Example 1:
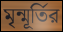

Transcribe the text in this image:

মৃন্মূর্তির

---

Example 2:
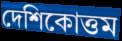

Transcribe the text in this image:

দেশিকোত্তম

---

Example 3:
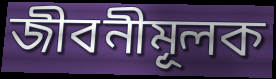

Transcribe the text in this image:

জীবনীমূলক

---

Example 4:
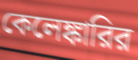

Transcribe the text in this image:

কেলেঙ্কারির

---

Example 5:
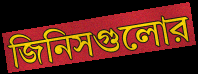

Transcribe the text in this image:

জিনিসগুলোর